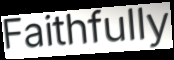
Faithfully